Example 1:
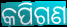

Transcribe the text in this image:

କପିଗଣ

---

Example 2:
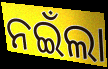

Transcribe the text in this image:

ନଇଁଲା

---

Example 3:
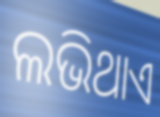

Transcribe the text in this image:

ଲଭିଥାଏ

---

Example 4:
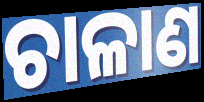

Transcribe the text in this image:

ଚାଳାଣ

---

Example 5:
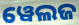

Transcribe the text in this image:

ୱେଲଜ